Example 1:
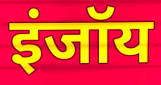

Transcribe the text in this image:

इंजॉय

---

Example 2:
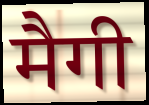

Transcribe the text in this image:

मैगी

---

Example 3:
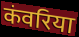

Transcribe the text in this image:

कंवरिया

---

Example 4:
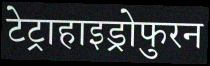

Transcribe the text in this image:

टेट्राहाइड्रोफुरन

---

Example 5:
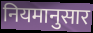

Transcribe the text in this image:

नियमानुसार